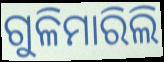
ଗୁଳିମାରିଲି